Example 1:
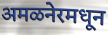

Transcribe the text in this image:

अमळनेरमधून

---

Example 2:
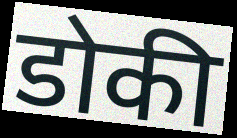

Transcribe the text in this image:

डोकी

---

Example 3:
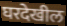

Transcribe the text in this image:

घरदेखील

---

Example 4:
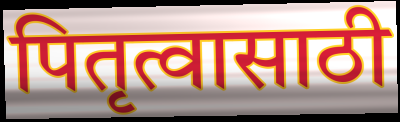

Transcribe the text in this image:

पितृत्वासाठी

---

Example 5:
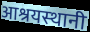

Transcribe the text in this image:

आश्रयस्थानी